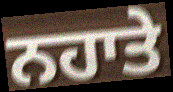
ਨਹਾਤੇ